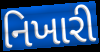
નિખારી